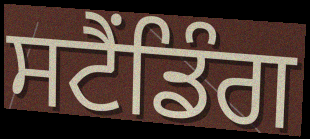
ਸਟੈਂਡਿੰਗ